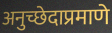
अनुच्छेदाप्रमाणे